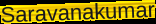
Saravanakumar